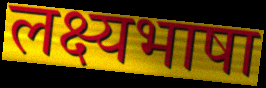
लक्ष्यभाषा